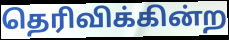
தெரிவிக்கின்ற